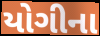
યોગીના